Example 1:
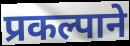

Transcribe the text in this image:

प्रकल्पाने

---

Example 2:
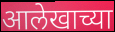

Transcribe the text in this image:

आलेखाच्या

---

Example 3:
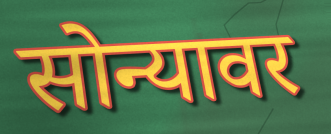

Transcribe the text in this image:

सोन्यावर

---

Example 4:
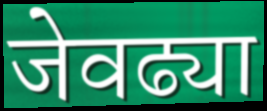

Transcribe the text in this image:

जेवढ्या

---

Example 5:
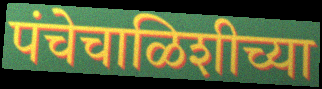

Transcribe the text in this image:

पंचेचाळिशीच्या